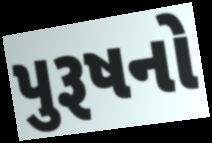
પુરૂષનો